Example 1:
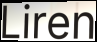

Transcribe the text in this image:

Liren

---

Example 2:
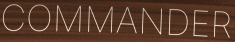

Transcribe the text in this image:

COMMANDER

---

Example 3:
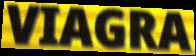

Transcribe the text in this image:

VIAGRA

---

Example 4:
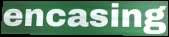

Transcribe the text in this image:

encasing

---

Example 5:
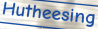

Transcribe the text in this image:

Hutheesing